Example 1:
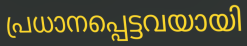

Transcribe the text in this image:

പ്രധാനപ്പെട്ടവയായി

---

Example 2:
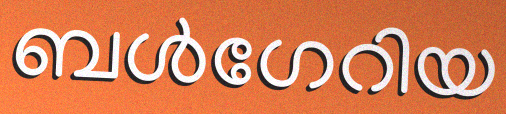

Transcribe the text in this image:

ബൾഗേറിയ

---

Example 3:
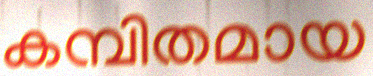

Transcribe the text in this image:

കമ്പിതമായ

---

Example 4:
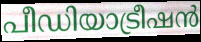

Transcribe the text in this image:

പീഡിയാട്രീഷൻ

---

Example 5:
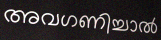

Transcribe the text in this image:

അവഗണിച്ചാൽ